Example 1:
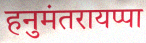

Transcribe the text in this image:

हनुमंतरायप्पा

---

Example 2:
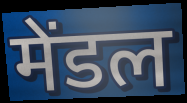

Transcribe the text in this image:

मेंडल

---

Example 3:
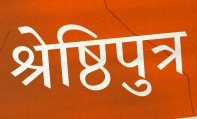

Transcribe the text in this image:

श्रेष्ठिपुत्र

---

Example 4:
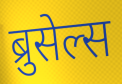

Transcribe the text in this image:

ब्रुसेल्स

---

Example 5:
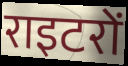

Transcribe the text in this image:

राइटरों